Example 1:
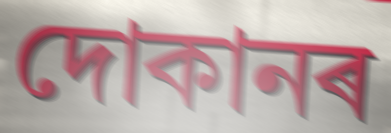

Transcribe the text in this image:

দোকানৰ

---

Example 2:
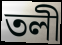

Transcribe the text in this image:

তলী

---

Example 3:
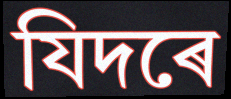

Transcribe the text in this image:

যিদৰে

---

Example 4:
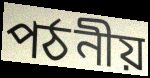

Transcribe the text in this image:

পঠনীয়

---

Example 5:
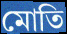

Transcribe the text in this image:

মোতি